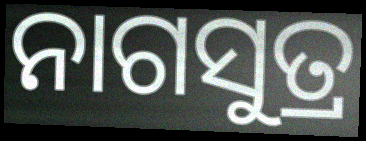
ନାଗସୁତ୍ର